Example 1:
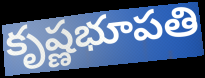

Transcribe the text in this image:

కృష్ణభూపతి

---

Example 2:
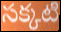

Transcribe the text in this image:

సక్కటి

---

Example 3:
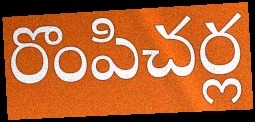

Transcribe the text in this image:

రొంపిచర్ల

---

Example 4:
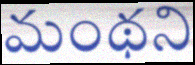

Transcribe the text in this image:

మంథని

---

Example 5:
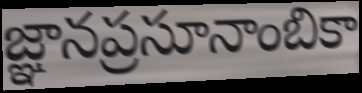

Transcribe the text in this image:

జ్ఞానప్రసూనాంబికా